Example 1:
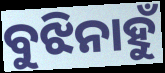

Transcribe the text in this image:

ବୁଝିନାହୁଁ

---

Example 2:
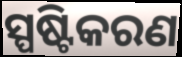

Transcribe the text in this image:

ସ୍ପଷ୍ଟିକରଣ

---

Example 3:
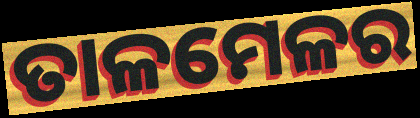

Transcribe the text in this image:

ତାଳମେଳର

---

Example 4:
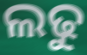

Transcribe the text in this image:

ଲଢୁ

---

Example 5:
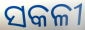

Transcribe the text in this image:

ସକଳୀ